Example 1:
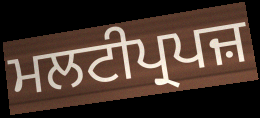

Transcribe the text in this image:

ਮਲਟੀਪ੍ਰਪਜ਼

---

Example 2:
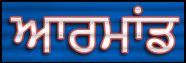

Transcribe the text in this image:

ਆਰਮਾਂਡ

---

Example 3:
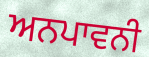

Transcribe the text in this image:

ਅਨਪਾਵਨੀ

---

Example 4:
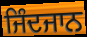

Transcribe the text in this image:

ਜਿੰਦਜਾਨ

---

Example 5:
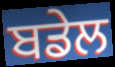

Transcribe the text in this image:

ਬਡੇਲ